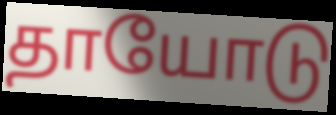
தாயோடு